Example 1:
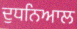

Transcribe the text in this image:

ਦੁਧਨਿਆਲ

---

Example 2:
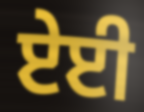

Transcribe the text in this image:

ਏਈ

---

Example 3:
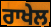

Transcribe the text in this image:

ਰਾਖੇਲ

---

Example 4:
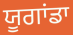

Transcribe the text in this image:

ਯੂਗਾਂਡਾ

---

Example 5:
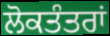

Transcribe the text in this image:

ਲੋਕਤੰਤਰਾਂ